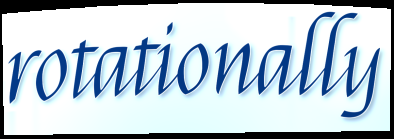
rotationally